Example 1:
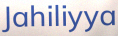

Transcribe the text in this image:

Jahiliyya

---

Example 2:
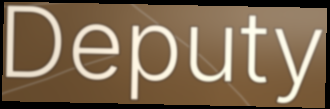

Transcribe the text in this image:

Deputy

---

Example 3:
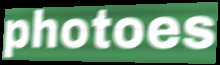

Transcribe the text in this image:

photoes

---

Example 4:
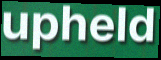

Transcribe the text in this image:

upheld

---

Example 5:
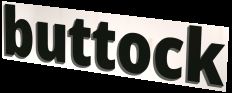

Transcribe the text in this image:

buttock